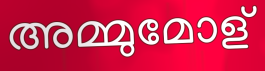
അമ്മുമോള്